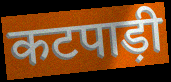
कटपाड़ी